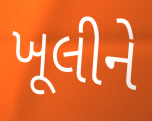
ખૂલીને